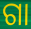
ଗା